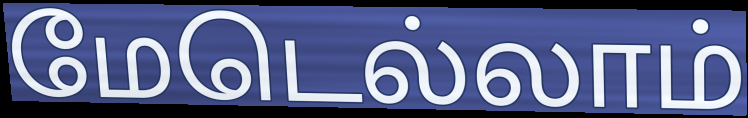
மேடெல்லாம்